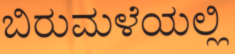
ಬಿರುಮಳೆಯಲ್ಲಿ